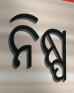
ନିଷ୍ପ